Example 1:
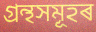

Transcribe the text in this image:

গ্ৰন্থসমূহৰ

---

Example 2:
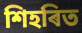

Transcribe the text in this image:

শিহৰিত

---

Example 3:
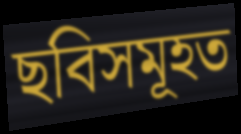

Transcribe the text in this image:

ছবিসমূহত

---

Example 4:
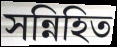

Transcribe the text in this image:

সন্নিহিত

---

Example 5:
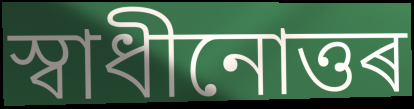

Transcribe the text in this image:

স্বাধীনোত্তৰ